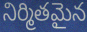
నిర్మితమైన